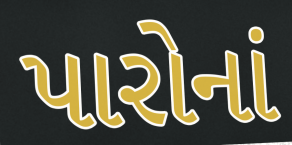
પારોનાં